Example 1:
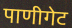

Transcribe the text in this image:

पाणीगेट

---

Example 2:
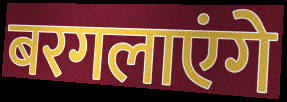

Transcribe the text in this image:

बरगलाएंगे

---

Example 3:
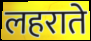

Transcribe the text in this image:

लहराते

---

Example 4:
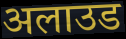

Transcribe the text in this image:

अलाउड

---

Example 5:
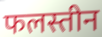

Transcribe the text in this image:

फलस्तीन